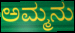
ಅಮ್ಮನು